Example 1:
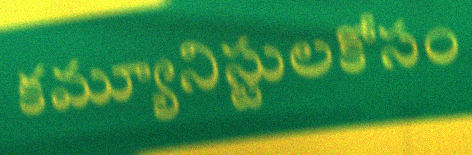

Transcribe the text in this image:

కమ్యూనిస్టులకోసం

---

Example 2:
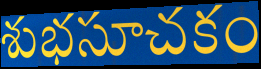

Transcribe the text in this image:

శుభసూచకం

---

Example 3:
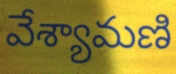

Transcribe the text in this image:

వేశ్యామణి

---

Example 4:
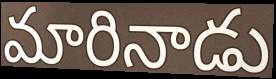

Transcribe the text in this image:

మారినాడు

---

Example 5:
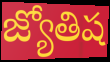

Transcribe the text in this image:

జ్యోతిష